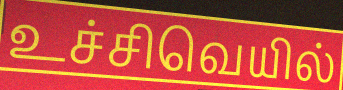
உச்சிவெயில்